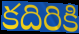
కదిరికి